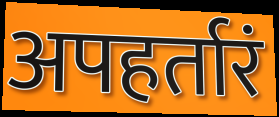
अपहर्तारं